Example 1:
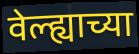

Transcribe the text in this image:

वेल्ह्याच्या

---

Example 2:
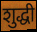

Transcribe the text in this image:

शुद्धी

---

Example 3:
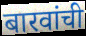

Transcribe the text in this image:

बारवांची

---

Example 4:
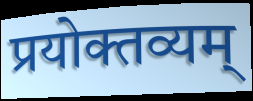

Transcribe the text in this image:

प्रयोक्तव्यम्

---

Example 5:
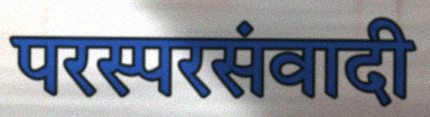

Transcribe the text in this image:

परस्परसंवादी